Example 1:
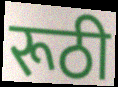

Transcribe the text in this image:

रूठी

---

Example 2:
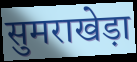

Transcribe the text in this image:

सुमराखेड़ा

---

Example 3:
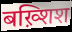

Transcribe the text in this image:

बख़्शिश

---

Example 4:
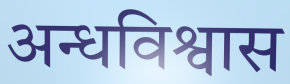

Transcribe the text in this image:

अन्धविश्वास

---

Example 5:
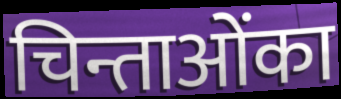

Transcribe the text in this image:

चिन्ताओंका